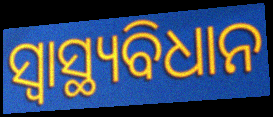
ସ୍ୱାସ୍ଥ୍ୟବିଧାନ